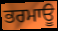
ਭਰਮਾਊ